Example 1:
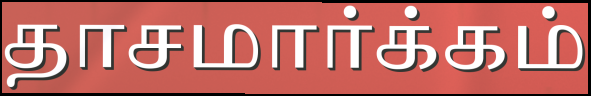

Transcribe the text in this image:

தாசமார்க்கம்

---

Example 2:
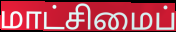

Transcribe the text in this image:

மாட்சிமைப்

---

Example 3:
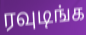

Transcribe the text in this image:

ரவுடிங்க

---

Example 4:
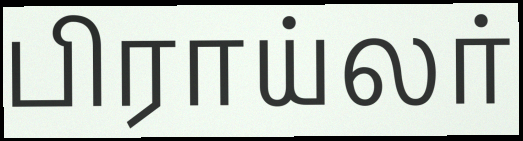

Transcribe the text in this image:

பிராய்லர்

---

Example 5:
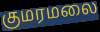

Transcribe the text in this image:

குமரமலை